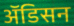
ॲडिसन